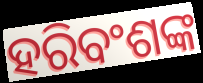
ହରିବଂଶଙ୍କ